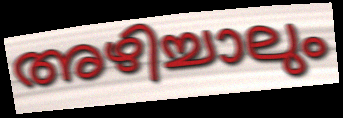
അഴിച്ചാലും